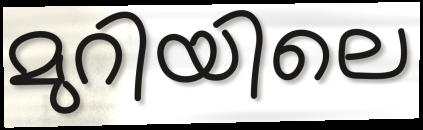
മുറിയിലെ